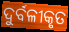
ଦୁର୍ବଳୀକୃତ